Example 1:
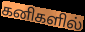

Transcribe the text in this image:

கனிகளில்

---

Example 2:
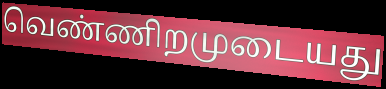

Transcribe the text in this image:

வெண்ணிறமுடையது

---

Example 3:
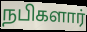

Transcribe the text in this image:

நபிகளார்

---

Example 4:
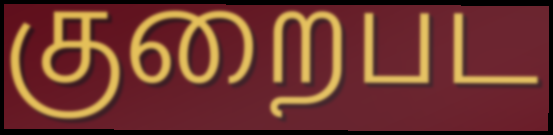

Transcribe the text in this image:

குறைபட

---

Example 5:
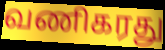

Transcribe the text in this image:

வணிகரது